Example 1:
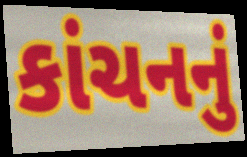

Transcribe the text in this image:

કાંચનનું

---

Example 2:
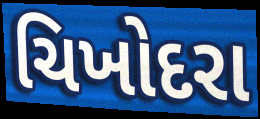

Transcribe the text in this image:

ચિખોદરા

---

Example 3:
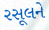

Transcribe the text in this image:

રસૂલને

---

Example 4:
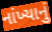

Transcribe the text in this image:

નાંખ્યાનું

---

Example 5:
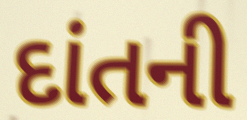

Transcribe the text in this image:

દાંતની